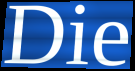
Die